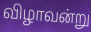
விழாவன்று